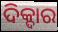
ଦିକ୍ଦାର